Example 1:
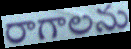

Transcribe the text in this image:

రాగాలను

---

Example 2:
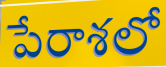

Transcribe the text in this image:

పేరాశలో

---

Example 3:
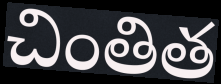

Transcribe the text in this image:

చింతిత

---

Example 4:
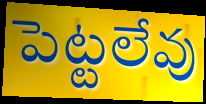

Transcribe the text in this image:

పెట్టలేవు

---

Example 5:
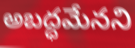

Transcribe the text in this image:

అబద్ధమేనని